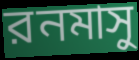
রনমাসু